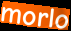
morlo